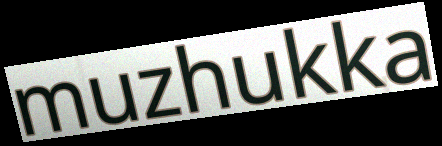
muzhukka